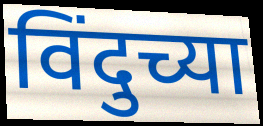
विंदुच्या